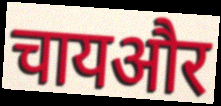
चायऔर